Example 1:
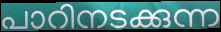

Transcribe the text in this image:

പാറിനടക്കുന്ന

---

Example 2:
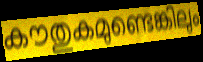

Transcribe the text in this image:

കൗതുകമുണ്ടെങ്കിലും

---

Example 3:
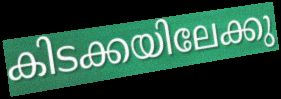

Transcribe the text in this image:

കിടക്കയിലേക്കു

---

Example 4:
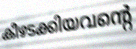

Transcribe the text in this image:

കീഴടക്കിയവന്റെ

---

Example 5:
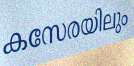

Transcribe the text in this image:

കസേരയിലും